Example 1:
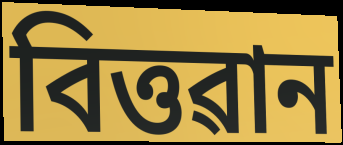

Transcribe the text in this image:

বিত্তৱান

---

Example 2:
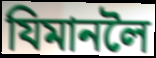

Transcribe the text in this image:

যিমানলৈ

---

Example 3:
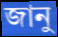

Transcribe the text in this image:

জানু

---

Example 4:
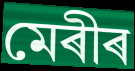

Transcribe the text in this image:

মেৰীৰ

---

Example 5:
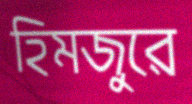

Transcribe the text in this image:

হিমজুৱে